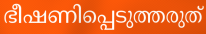
ഭീഷണിപ്പെടുത്തരുത്